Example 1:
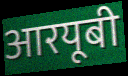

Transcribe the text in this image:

आरयूबी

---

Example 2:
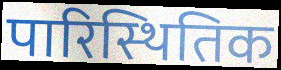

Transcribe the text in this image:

पारिस्थितिक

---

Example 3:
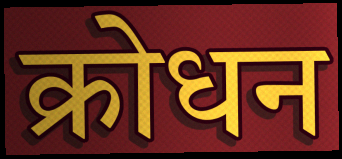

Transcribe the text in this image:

क्रोधन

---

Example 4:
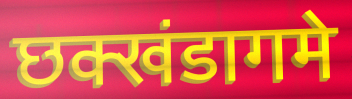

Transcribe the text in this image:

छक्खंडागमे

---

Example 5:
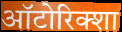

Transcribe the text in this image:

ऑटोरिक्‍शा